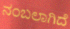
ನಂಬಲಾಗಿದೆ